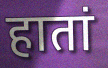
हातां